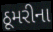
ઠૂમરીના